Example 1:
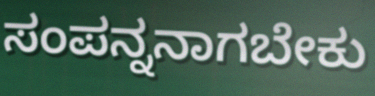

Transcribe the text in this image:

ಸಂಪನ್ನನಾಗಬೇಕು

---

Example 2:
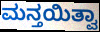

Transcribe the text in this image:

ಮನ್ತಯಿತ್ವಾ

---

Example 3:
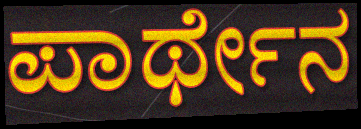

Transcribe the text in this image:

ಪಾರ್ಥೇನ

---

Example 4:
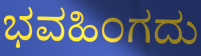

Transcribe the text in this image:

ಭವಹಿಂಗದು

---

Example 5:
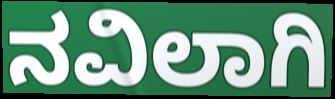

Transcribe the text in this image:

ನವಿಲಾಗಿ